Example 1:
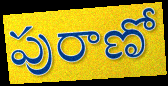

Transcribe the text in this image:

పురాణో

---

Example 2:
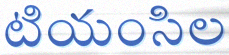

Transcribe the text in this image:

టియంసిల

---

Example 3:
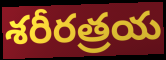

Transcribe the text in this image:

శరీరత్రయ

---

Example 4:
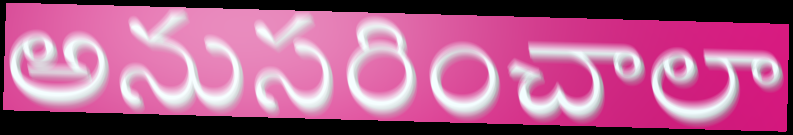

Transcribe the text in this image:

అనుసరించాలా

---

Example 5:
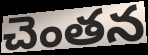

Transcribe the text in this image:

చెంతన